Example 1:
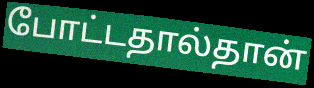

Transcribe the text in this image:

போட்டதால்தான்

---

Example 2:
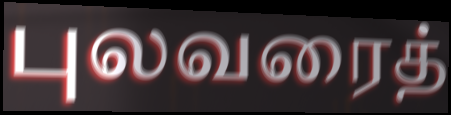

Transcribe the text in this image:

புலவரைத்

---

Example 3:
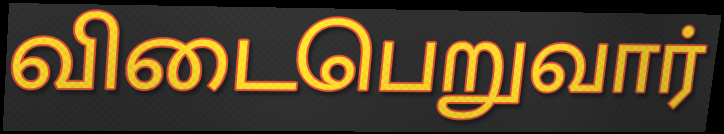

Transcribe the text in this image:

விடைபெறுவார்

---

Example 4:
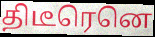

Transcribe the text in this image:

திடீரெனெ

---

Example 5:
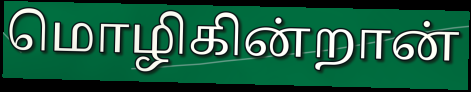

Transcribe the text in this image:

மொழிகின்றான்